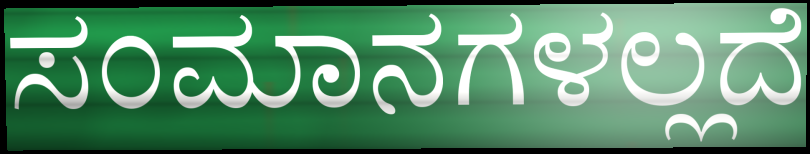
ಸಂಮಾನಗಳಲ್ಲದೆ